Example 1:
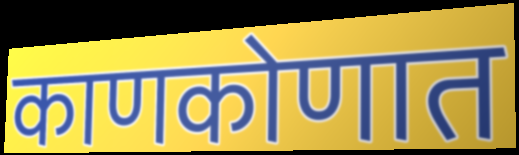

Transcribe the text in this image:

काणकोणात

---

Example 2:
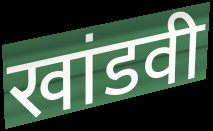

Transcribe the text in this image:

खांडवी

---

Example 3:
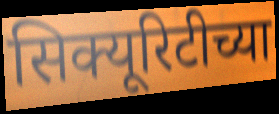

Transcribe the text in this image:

सिक्यूरिटीच्या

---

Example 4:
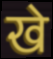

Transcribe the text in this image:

खे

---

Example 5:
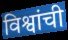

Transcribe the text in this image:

विश्वांची